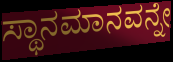
ಸ್ಥಾನಮಾನವನ್ನೇ